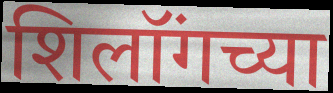
शिलॉंगच्या